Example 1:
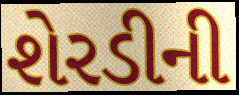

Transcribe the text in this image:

શેરડીની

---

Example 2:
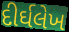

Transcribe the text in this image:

દીર્ઘલેખ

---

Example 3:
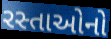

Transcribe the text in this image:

રસ્તાઓનો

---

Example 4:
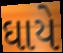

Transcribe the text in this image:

ઘાયે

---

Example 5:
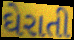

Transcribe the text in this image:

ઘેરાતી